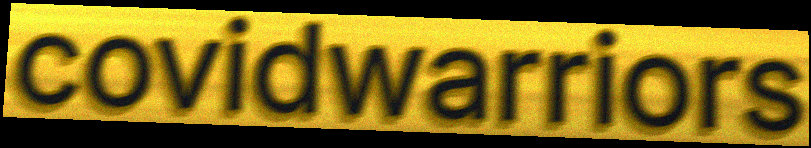
covidwarriors